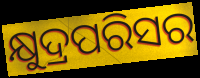
କ୍ଷୁଦ୍ରପରିସର